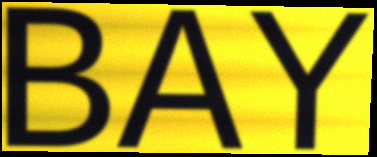
BAY